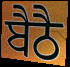
ਬੈਠੈ